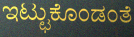
ಇಟ್ಟುಕೊಂಡಂತೆ